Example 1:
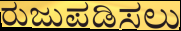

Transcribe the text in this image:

ರುಜುಪಡಿಸಲು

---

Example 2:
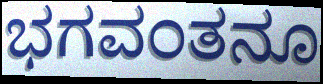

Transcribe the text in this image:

ಭಗವಂತನೂ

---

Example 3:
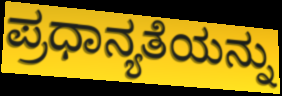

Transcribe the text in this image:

ಪ್ರಧಾನ್ಯತೆಯನ್ನು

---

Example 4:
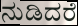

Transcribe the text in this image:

ನುಡಿದರೆ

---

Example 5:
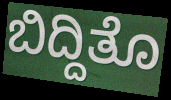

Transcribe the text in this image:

ಬಿದ್ದಿತೊ